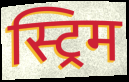
स्ट्रिम